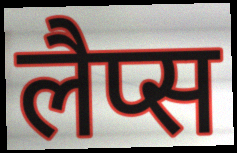
लैप्स